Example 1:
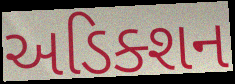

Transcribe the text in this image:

અડિક્શન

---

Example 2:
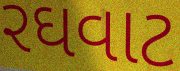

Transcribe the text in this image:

રઘવાટ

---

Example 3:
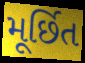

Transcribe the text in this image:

મૂર્છિત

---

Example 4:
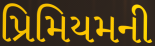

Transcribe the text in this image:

પ્રિમિયમની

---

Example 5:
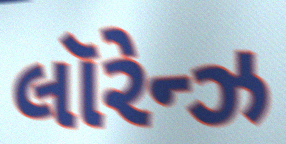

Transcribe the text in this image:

લૉરેન્ઝ